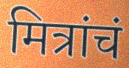
मित्रांचं